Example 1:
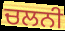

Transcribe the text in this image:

ਚਲਨੀ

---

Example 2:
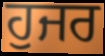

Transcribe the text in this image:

ਹੁਜਰ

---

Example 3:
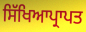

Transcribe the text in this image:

ਸਿੱਖਿਆਪ੍ਰਾਪਤ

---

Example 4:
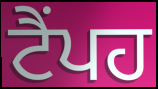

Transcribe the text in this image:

ਟੈਂਪਹ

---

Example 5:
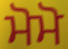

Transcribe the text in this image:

ਮੋਮੋ